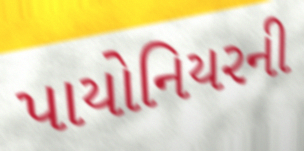
પાયોનિયરની